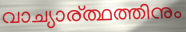
വാച്യാര്ത്ഥത്തിനും